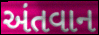
અંતવાન